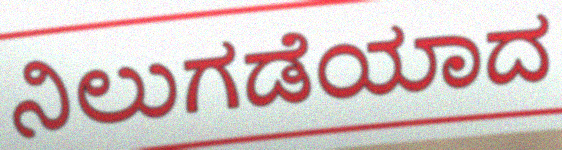
ನಿಲುಗಡೆಯಾದ